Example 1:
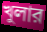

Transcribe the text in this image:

খুলার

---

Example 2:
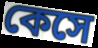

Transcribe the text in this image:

কেসে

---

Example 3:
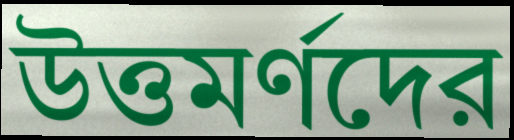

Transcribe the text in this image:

উত্তমর্ণদের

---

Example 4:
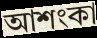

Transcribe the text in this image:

আশংকা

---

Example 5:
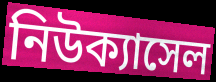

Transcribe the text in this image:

নিউক্যাসেল